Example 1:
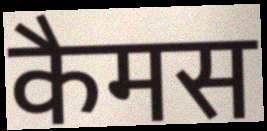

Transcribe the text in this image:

कैमस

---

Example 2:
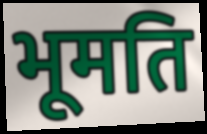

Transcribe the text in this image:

भूमति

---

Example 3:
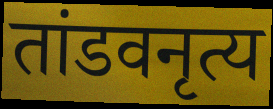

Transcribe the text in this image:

तांडवनृत्य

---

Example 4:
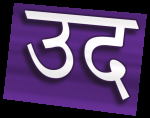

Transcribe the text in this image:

उद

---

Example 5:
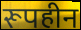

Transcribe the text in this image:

रूपहीन